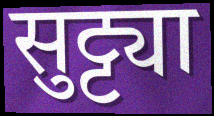
सुट्ट्या